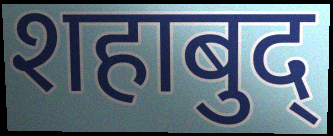
शहाबुद्